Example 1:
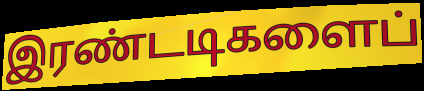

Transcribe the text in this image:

இரண்டடிகளைப்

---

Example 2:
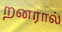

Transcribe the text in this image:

றனரால்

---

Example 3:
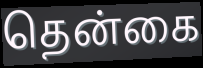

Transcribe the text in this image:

தென்கை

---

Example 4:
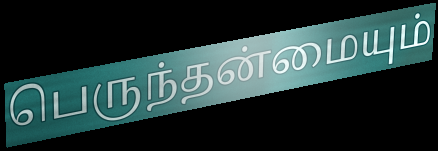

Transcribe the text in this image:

பெருந்தன்மையும்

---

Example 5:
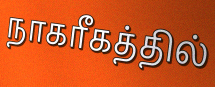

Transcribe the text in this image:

நாகரீகத்தில்